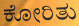
ಕೋರಿತು